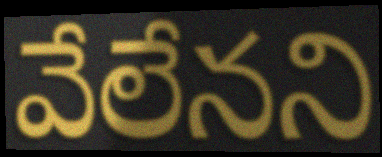
వేలేనని